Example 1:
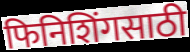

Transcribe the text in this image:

फिनिशिंगसाठी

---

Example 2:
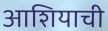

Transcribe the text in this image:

आशियाची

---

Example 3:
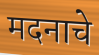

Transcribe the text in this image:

मदनाचे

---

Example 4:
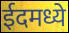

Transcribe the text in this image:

ईदमध्ये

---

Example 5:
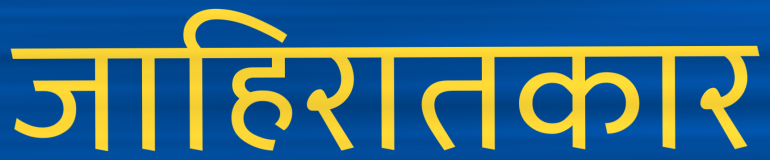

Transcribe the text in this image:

जाहिरातकार